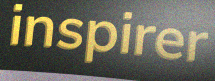
inspirer